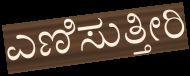
ಎಣಿಸುತ್ತೀರಿ